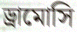
ড্রামোসি